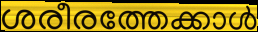
ശരീരത്തേക്കാൾ